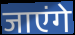
जाएंगे